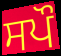
ਸਪੌ